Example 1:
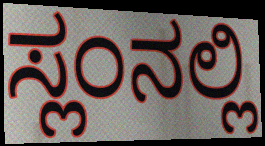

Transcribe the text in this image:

ಸ್ಲಂನಲ್ಲಿ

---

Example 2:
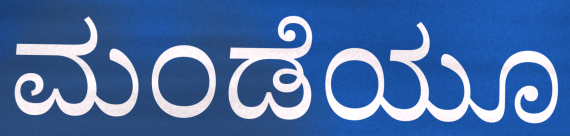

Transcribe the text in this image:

ಮಂಡೆಯೂ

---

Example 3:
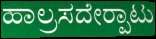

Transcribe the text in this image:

ಹಾಲ್ರಸದೇರ‍್ಪಾಟು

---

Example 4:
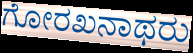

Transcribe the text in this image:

ಗೋರಖನಾಥರು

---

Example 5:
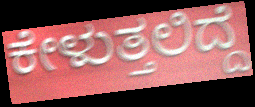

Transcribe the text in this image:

ಕೇಳುತ್ತಲಿದ್ದೆ